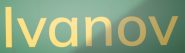
Ivanov